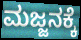
ಮಜ್ಜನಕ್ಕೆ